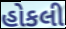
હોકલી